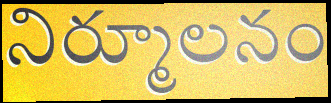
నిర్మూలనం